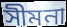
সীমনা